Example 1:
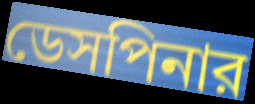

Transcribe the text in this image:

ডেসপিনার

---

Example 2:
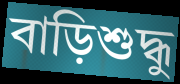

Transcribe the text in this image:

বাড়িশুদ্ধু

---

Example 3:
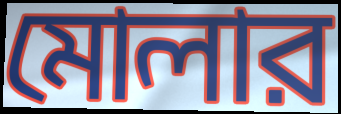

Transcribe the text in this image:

মোলার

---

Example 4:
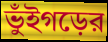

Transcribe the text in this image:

ভুঁইগড়ের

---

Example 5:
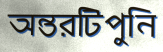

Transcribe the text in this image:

অন্তরটিপুনি